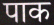
पाक